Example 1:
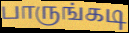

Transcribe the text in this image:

பாருங்கடி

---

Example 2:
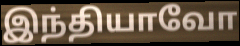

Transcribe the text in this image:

இந்தியாவோ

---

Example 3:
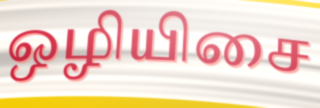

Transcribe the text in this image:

ஒழியிசை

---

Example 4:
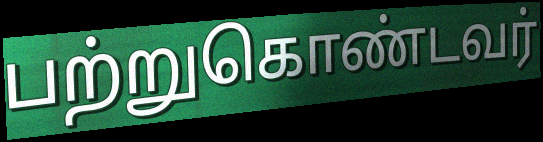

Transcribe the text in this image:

பற்றுகொண்டவர்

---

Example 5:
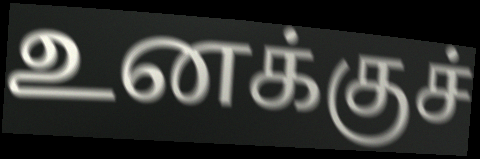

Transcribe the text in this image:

உனக்குச்